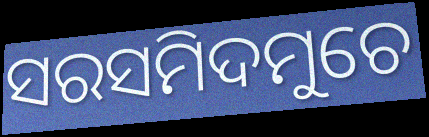
ସରସମିଦମୁଚେ